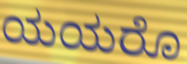
ಯಯರೊ